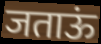
जताऊं